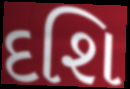
દશિ